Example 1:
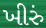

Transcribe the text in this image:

ખીરું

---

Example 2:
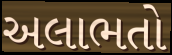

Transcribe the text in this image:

અલાભતો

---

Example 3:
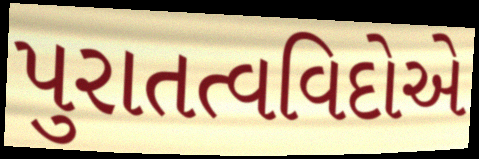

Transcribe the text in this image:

પુરાતત્વવિદોએ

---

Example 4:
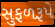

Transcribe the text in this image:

સુફળરૂપે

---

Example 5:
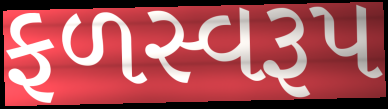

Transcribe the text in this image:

ફળસ્વરૂપ